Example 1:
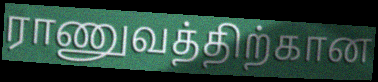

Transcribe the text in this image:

ராணுவத்திற்கான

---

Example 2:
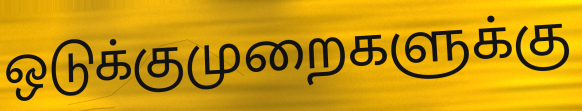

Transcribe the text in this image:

ஒடுக்குமுறைகளுக்கு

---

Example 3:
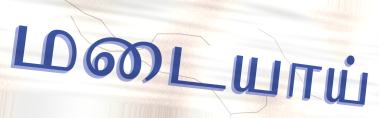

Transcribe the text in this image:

மடையாய்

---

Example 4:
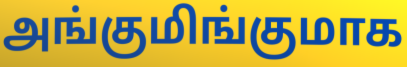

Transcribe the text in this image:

அங்குமிங்குமாக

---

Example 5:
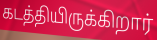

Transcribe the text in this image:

கடத்தியிருக்கிறார்